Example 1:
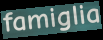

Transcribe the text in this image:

famiglia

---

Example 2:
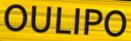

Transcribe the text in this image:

OULIPO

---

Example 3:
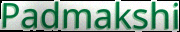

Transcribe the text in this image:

Padmakshi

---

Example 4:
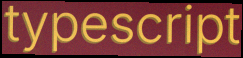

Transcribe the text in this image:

typescript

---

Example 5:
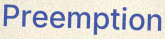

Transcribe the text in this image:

Preemption